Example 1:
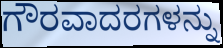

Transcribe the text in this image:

ಗೌರವಾದರಗಳನ್ನು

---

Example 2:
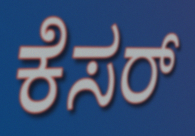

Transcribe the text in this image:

ಕೆಸರ್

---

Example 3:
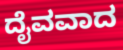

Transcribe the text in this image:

ದೈವವಾದ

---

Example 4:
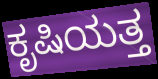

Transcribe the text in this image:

ಕೃಷಿಯತ್ತ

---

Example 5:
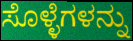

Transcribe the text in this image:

ಸೊಳ್ಳೆಗಳನ್ನು